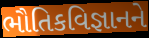
ભૌતિકવિજ્ઞાનને